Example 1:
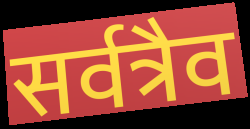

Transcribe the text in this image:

सर्वत्रैव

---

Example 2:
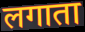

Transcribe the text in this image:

लगाता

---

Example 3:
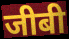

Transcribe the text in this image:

जीबी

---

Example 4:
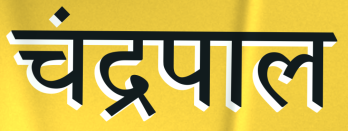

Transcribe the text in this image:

चंद्रपाल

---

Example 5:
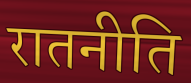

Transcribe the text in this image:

रातनीति